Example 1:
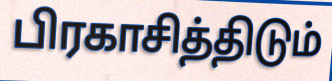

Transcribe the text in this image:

பிரகாசித்திடும்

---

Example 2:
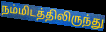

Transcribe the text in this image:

நம்மிடத்திலிருந்து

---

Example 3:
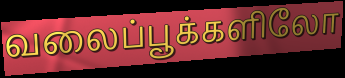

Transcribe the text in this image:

வலைப்பூக்களிலோ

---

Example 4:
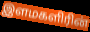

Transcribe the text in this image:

இளமகளிரின்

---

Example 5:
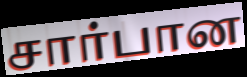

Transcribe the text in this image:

சார்பான